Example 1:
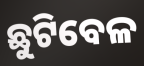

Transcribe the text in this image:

ଛୁଟିବେଳ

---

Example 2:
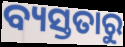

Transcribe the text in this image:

ବ୍ୟସ୍ତତାରୁ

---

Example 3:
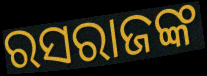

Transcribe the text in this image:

ରସରାଜଙ୍କ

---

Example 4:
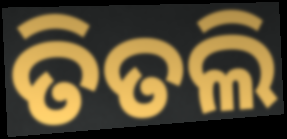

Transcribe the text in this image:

ତିତଲି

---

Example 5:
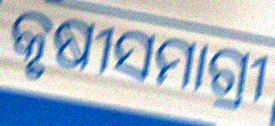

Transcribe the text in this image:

କୃଷୀସମାଗ୍ରୀ